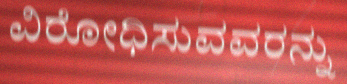
ವಿರೋಧಿಸುವವರನ್ನು